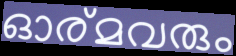
ഓര്മവരും